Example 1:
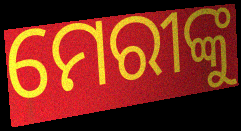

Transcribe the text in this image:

ମେରୀଙ୍କୁ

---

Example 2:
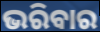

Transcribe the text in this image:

ଭରିବାର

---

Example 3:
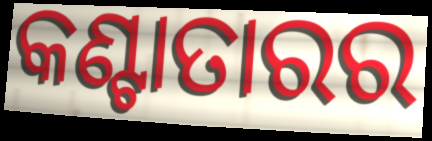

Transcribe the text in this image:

କଣ୍ଟାତାରର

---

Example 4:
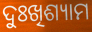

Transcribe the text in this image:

ଦୁଃଖିଶ୍ୟାମ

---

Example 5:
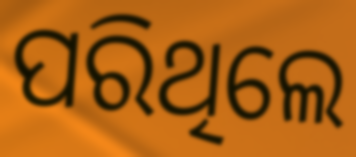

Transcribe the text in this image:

ପରିଥିଲେ